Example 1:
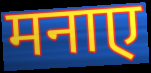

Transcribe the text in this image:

मनाए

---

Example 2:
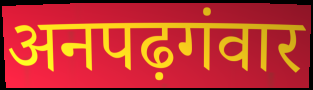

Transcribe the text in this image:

अनपढ़गंवार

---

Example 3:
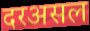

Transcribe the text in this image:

दरअसल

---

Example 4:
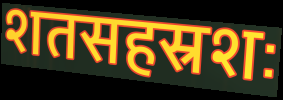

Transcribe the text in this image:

शतसहस्रशः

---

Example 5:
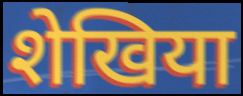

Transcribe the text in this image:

शेखिया